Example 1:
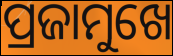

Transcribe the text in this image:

ପ୍ରଜାମୁଖେ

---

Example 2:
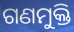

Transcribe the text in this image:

ଗଣମୁକ୍ତି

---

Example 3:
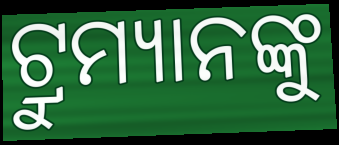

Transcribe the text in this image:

ଟ୍ରୁମ୍ୟାନଙ୍କୁ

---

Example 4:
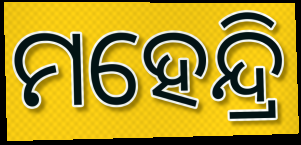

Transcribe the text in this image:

ମହେନ୍ଦ୍ରି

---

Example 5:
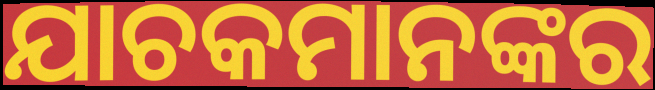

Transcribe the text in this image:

ଯାଚକମାନଙ୍କର